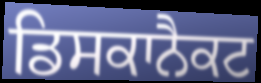
ਡਿਸਕਾਨੈਕਟ